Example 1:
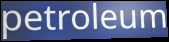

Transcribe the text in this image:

petroleum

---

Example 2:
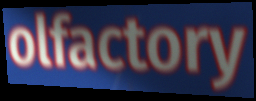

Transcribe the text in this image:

olfactory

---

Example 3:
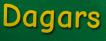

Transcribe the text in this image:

Dagars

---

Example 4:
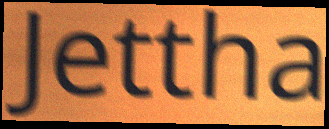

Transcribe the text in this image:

Jettha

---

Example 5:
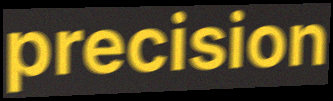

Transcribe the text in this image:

precision